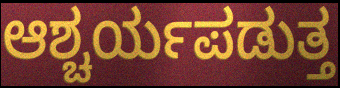
ಆಶ್ಚರ್ಯಪಡುತ್ತ